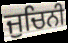
ਜੁਚਿਨੀ